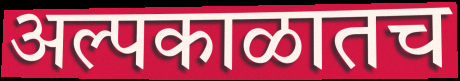
अल्पकाळातच